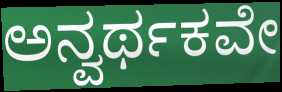
ಅನ್ವರ್ಥಕವೇ